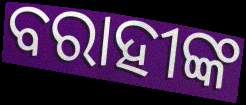
ବରାହୀଙ୍କ